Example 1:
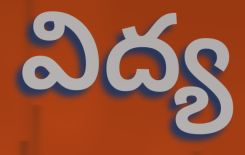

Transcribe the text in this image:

విద్య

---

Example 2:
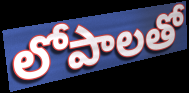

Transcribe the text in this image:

లోపాలతో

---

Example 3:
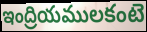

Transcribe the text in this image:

ఇంద్రియములకంటె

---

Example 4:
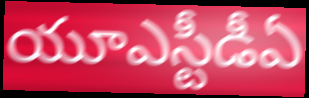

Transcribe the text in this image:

యూఎస్టీడీఏ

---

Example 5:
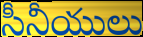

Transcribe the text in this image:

సీనీయులు